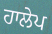
ਹਾਲੇਪ